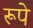
रूपे